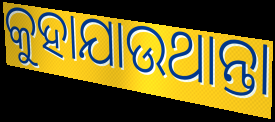
କୁହାଯାଉଥାନ୍ତା